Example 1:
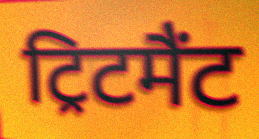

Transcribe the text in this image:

ट्रिटमैंट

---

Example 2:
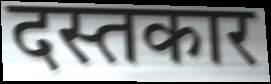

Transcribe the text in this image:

दस्‍तकार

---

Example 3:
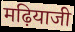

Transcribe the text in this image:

मढ़ियाजी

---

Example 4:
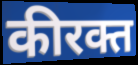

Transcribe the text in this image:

कीरक्त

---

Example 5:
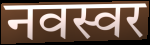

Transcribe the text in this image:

नवस्वर